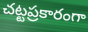
చట్టప్రకారంగా